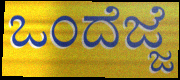
ಒಂದೆಜ್ಜೆ